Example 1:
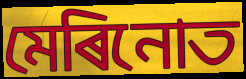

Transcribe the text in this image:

মেৰিনোত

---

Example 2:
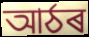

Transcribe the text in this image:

আঠৰ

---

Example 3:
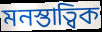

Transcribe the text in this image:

মনস্তাত্বিক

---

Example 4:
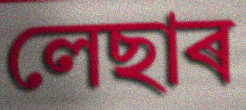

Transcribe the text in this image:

লেছাৰ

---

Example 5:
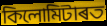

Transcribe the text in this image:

কিলোমিটাৰত